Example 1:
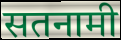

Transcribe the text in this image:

सतनामी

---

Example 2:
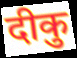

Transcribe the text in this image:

दीकु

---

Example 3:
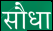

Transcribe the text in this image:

सौधा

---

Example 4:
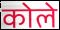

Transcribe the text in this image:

कोले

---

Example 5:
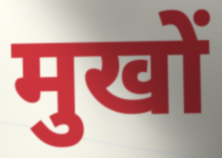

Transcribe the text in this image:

मुखों